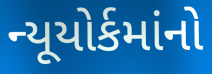
ન્યૂયોર્કમાંનો